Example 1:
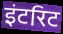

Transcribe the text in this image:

इंटरिट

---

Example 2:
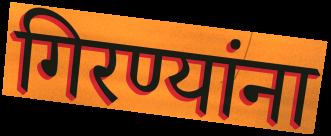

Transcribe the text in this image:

गिरण्यांना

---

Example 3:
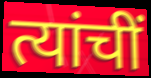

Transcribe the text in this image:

त्यांचीं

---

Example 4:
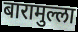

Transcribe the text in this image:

बारामुल्ला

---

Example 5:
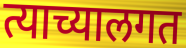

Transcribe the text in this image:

त्याच्यालगत